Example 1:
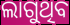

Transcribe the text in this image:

ଲାଗୁଥିବ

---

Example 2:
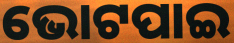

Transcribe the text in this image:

ଭୋଟପାଇ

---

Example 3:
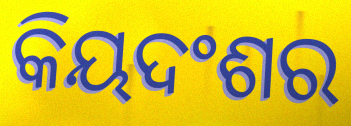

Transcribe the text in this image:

କିୟଦଂଶର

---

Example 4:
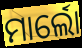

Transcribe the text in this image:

ମାର୍ଲୋ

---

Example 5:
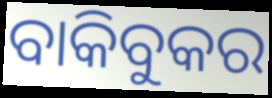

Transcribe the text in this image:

ବାକିବୁକର